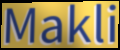
Makli